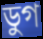
ডুগ